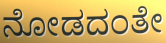
ನೋಡದಂತೇ